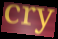
cry